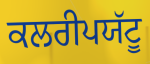
ਕਲਰੀਪਯੱਟੂ